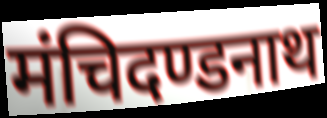
मंचिदण्डनाथ